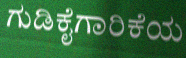
ಗುಡಿಕೈಗಾರಿಕೆಯ